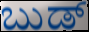
ಬುಡ್